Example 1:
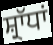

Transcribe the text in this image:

ਸ਼੍ਰਾੱਧਾਂ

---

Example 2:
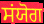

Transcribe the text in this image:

ਸਂਯੋਗ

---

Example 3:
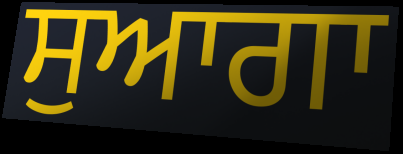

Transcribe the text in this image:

ਸੁਆਗਾ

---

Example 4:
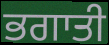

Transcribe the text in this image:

ਭਗਾਤੀ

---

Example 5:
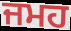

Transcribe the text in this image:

ਜਮਹ